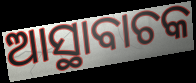
ଆସ୍ଥାବାଚକ